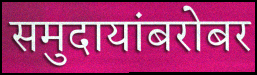
समुदायांबरोबर